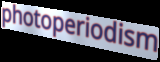
photoperiodism